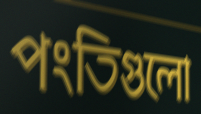
পংতিগুলো